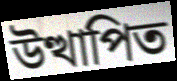
উত্থাপিত